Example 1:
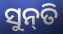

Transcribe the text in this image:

ସୁନ୍‌ତି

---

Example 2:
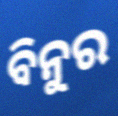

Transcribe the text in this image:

ବିନୁର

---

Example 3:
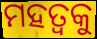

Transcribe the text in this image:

ମହତ୍ଵକୁ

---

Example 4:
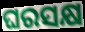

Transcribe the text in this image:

ଘରସକ୍ଷ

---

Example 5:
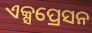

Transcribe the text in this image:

ଏକ୍ସପ୍ରେସନ